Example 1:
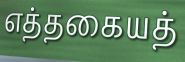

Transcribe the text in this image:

எத்தகையத்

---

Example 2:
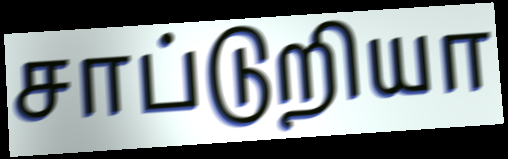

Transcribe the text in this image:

சாப்டுறியா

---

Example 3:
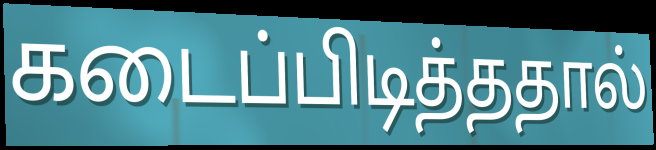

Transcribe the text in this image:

கடைப்பிடித்ததால்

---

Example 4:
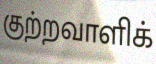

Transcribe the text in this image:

குற்றவாளிக்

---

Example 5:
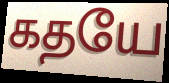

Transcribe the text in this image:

கதயே